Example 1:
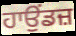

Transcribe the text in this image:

ਹਾਉਂਡਜ਼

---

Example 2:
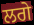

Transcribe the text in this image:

ਲਗੇ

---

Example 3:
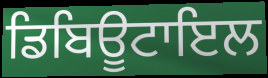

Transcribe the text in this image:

ਡਿਬਿਊਟਾਇਲ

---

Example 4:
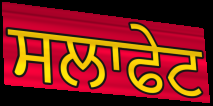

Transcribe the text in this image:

ਸਲਾਫੇਟ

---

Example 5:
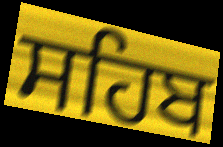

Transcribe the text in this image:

ਸਹਿਬ